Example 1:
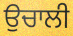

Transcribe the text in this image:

ਉਚਾਲੀ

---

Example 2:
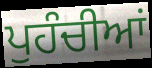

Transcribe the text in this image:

ਪੁਹੰਚੀਆਂ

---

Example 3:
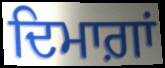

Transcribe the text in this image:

ਦਿਮਾਗ਼ਾਂ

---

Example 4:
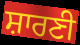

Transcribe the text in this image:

ਸ਼ਾਰਣੀ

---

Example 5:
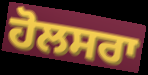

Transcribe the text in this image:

ਹੋਲਸਰਾ